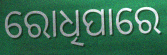
ରୋଧିପାରେ